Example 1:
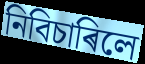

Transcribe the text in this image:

নিবিচাৰিলে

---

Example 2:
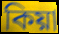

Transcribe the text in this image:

কিয়া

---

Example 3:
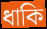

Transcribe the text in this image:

ধাকি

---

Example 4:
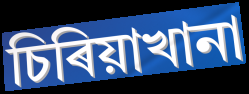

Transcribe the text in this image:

চিৰিয়াখানা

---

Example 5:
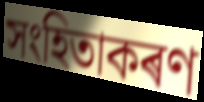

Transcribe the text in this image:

সংহিতাকৰণ